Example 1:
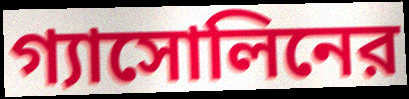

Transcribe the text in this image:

গ্যাসোলিনের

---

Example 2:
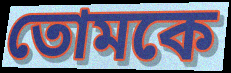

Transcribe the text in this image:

তোমকে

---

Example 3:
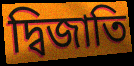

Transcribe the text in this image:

দ্বিজাতি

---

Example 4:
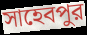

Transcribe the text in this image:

সাহেবপুর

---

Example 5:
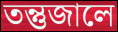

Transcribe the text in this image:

তন্তুজালে